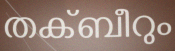
തക്ബീറും